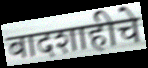
बादशाहीचे